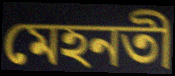
মেহনতী